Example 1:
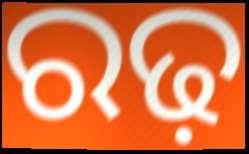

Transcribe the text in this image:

ରଢ଼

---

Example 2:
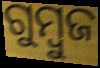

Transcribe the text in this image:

ଗୁମ୍ବୁଜ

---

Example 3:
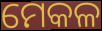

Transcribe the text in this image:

ମେକଳ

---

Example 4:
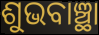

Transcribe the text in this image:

ଶୁଭବାଞ୍ଛା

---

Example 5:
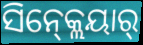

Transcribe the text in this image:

ସିନ୍କ୍ଲେୟାର୍